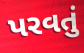
પરવતું